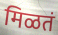
मिळतं